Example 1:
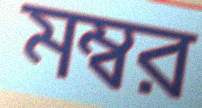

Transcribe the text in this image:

মম্বর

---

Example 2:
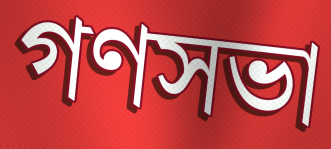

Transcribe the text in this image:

গণসভা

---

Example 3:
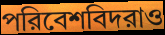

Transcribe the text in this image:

পরিবেশবিদরাও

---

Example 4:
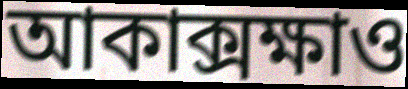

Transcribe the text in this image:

আকাক্সক্ষাও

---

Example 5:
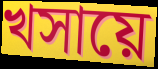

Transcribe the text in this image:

খসায়ে